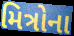
મિત્રોના